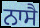
ਨਾਸੈ